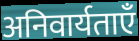
अनिवार्यताएँ